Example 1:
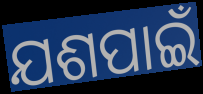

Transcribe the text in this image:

ଯଶପାଇଁ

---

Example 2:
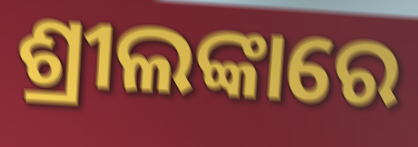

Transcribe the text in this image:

ଶ୍ରୀଲଙ୍କାରେ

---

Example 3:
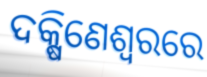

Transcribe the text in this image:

ଦକ୍ଷିଣେଶ୍ୱରରେ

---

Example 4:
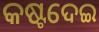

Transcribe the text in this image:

କଷ୍ଟଦେଇ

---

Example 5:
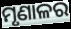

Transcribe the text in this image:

ମୃଣାଳର